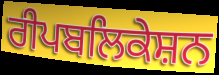
ਰੀਪਬਲਿਕੇਸ਼ਨ